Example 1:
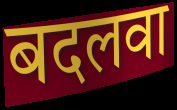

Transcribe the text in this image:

बदलवा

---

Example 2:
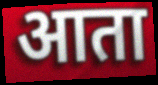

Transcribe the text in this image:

आता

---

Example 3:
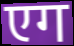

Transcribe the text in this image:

एग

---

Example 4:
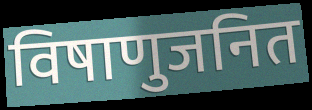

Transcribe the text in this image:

विषाणुजनित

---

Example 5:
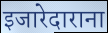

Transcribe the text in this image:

इजारेदाराना